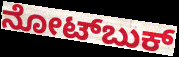
ನೋಟ್‌ಬುಕ್